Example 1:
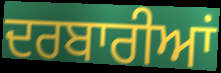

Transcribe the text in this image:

ਦਰਬਾਰੀਆਂ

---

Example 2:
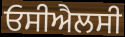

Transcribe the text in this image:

ਓਸੀਐਲਸੀ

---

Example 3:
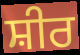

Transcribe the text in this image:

ਸ਼ੀਰ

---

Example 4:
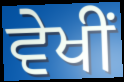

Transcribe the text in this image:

ਵੇਖੀਂ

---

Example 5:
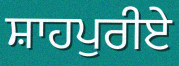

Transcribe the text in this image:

ਸ਼ਾਹਪੁਰੀਏ